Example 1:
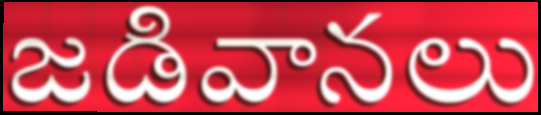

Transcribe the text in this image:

జడివానలు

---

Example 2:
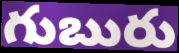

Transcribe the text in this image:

గుబురు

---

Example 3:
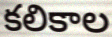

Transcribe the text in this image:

కలికాల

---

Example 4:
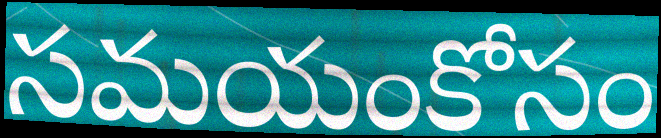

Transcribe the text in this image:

సమయంకోసం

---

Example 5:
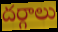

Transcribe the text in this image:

దర్గాలు